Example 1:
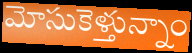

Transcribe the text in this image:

మోసుకెళ్తున్నాం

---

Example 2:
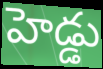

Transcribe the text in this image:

హెడ్డు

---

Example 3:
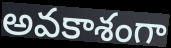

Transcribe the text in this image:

అవకాశంగా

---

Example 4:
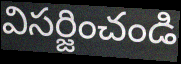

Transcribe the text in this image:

విసర్జించండి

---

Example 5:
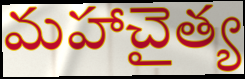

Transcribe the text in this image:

మహాచైత్య